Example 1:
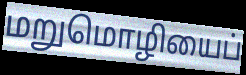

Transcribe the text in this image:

மறுமொழியைப்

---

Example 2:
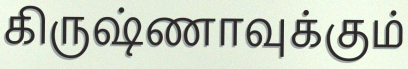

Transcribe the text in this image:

கிருஷ்ணாவுக்கும்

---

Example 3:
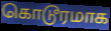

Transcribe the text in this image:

கொடூரமாக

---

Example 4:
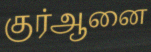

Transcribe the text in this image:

குர்ஆனை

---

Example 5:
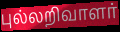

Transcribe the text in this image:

புல்லறிவாளர்